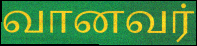
வானவர்